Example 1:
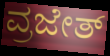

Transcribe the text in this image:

ವ್ರಜೇತ್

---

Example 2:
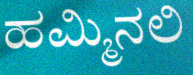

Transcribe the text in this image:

ಹಮ್ಮಿನಲಿ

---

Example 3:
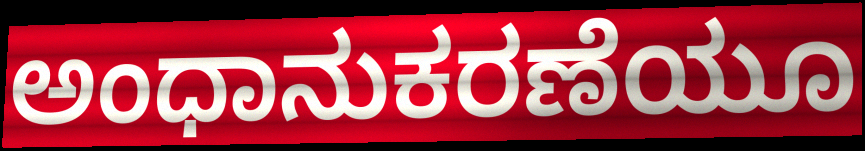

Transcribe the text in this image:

ಅಂಧಾನುಕರಣೆಯೂ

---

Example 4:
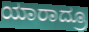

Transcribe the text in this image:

ಯಾರಾದ್ರೂ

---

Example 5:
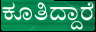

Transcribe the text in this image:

ಕೂತಿದ್ದಾರೆ